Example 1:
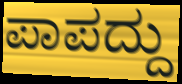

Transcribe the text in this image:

ಪಾಪದ್ದು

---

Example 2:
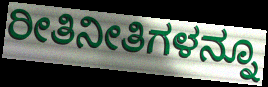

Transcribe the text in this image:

ರೀತಿನೀತಿಗಳನ್ನೂ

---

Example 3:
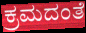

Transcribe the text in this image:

ಕ್ರಮದಂತೆ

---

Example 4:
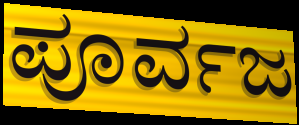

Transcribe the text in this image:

ಪೂರ್ವಜ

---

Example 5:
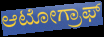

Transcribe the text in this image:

ಆಟೋಗ್ರಾಫ್